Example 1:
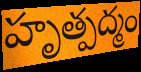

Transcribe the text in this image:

హృత్పద్మం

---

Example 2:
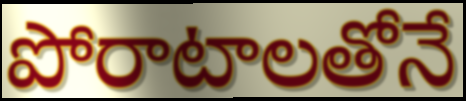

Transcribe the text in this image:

పోరాటాలతోనే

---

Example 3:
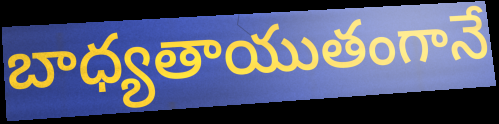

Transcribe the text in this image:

బాధ్యతాయుతంగానే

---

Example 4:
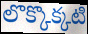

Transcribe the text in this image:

లొక్కొక్కటి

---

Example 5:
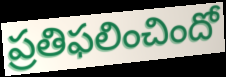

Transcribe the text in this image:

ప్రతిఫలించిందో